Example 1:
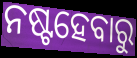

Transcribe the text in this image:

ନଷ୍ଟହେବାରୁ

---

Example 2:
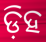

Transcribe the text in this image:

ଡ଼ିହ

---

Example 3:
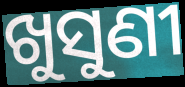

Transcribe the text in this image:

ଖୁସୁଣୀ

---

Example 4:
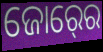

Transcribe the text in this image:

ଜୋର୍‍ରେ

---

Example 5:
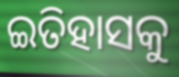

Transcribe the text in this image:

ଇତିହାସକୁ